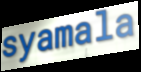
syamala